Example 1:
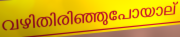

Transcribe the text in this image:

വഴിതിരിഞ്ഞുപോയാല്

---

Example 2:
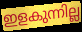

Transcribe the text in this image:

ഇളകുന്നില്ല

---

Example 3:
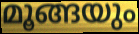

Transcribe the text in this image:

മൂങ്ങയും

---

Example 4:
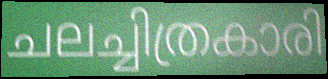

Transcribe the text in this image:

ചലച്ചിത്രകാരി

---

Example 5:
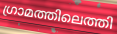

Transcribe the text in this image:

ഗ്രാമത്തിലെത്തി